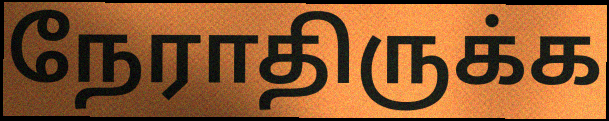
நேராதிருக்க